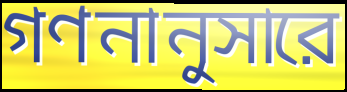
গণনানুসারে